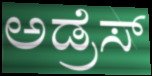
ಅಡ್ರೆಸ್